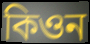
কিওন